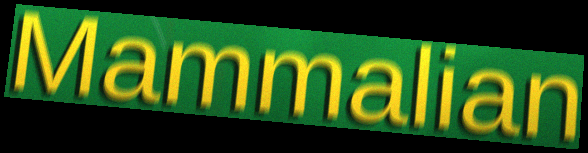
Mammalian